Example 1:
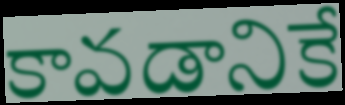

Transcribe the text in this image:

కావడానికే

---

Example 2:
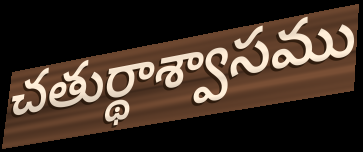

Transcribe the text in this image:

చతుర్థాశ్వాసము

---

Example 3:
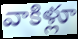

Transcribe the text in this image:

వాకిళ్లూ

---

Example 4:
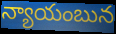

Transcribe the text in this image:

న్యాయంబున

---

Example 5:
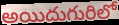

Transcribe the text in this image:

అయిదుగురిలో